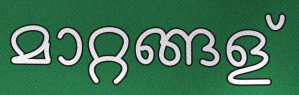
മാറ്റങ്ങള്